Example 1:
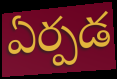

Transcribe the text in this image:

ఏర్పడ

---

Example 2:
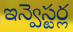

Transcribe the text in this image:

ఇన్వెస్టర్ల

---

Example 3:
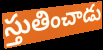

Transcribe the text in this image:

స్తుతించాడు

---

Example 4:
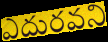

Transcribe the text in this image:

ఎదురవని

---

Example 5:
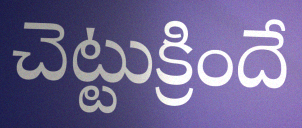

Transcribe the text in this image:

చెట్టుక్రిందే